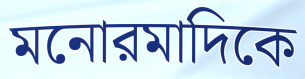
মনোরমাদিকে